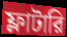
ফ্লাটারি